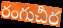
రంగుచీర